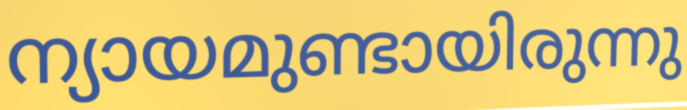
ന്യായമുണ്ടായിരുന്നു